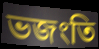
ভজংতি